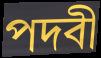
পদবী